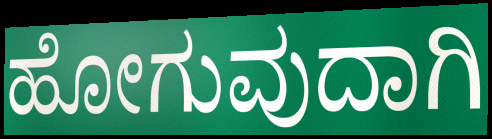
ಹೋಗುವುದಾಗಿ